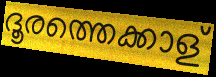
ദൂരത്തെക്കാള്